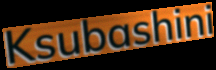
Ksubashini